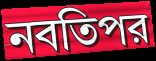
নবতিপর